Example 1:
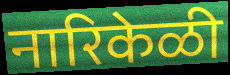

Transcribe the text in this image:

नारिकेळी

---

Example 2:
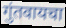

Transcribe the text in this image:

गुंतवायचा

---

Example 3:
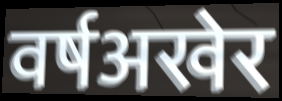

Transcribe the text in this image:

वर्षअखेर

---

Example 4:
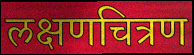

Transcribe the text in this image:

लक्षणचित्रण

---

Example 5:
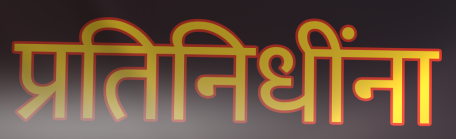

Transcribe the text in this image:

प्रतिनिधींना